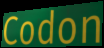
Codon